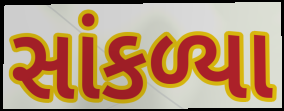
સાંકળ્યા